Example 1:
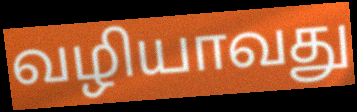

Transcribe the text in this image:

வழியாவது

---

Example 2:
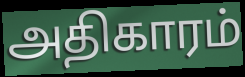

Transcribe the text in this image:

அதிகாரம்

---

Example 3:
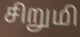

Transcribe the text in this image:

சிறுமி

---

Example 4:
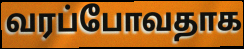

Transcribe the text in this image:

வரப்போவதாக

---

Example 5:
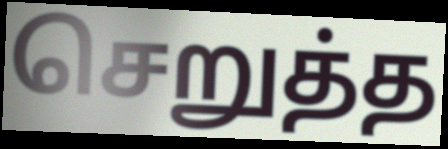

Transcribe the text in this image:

செறுத்த